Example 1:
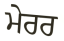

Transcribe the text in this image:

ਮੇਰਰ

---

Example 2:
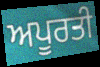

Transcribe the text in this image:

ਅਪੂਰਤੀ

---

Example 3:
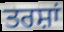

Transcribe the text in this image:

ਤਰਸ਼ਾਂ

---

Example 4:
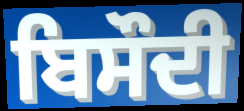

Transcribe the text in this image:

ਬਿਸੌਦੀ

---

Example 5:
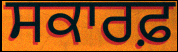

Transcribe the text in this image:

ਸਕਾਰਫ਼